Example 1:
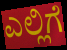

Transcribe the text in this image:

ಎಲ್ಲಿಗೆ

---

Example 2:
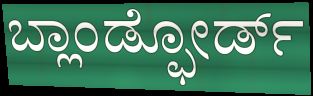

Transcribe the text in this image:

ಬ್ಲಾಂಡ್ಫೋರ್ಡ್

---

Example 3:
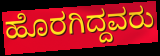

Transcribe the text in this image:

ಹೊರಗಿದ್ದವರು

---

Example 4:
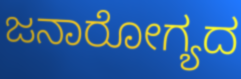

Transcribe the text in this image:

ಜನಾರೋಗ್ಯದ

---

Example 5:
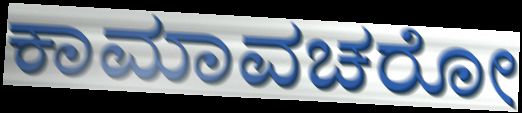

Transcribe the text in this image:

ಕಾಮಾವಚರೋ